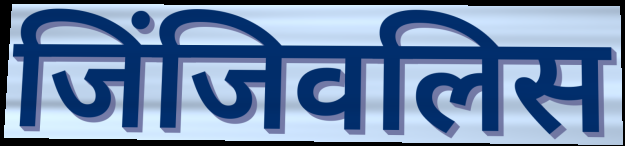
जिंजिवलिस